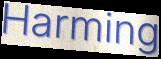
Harming